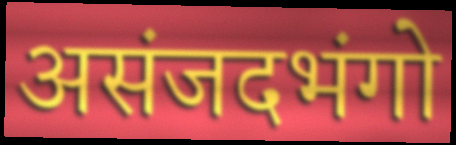
असंजदभंगो